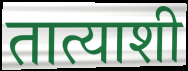
तात्याशी